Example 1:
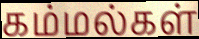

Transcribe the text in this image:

கம்மல்கள்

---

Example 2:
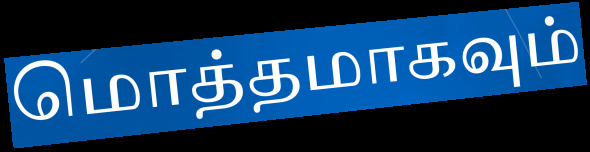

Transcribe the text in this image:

மொத்தமாகவும்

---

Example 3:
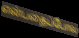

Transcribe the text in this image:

என்பதைப்போல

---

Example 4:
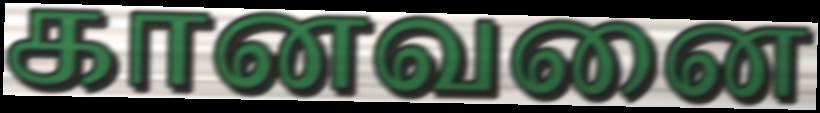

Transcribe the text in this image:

கானவனை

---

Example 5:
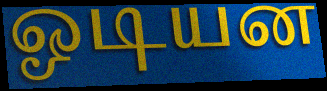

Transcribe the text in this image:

ஓடியன